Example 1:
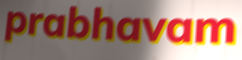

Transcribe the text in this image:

prabhavam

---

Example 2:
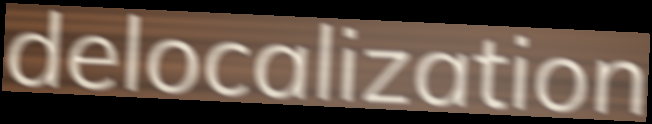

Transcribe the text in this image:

delocalization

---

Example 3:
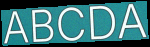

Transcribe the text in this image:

ABCDA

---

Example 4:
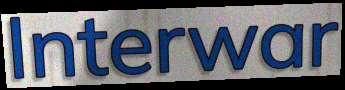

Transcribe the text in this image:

Interwar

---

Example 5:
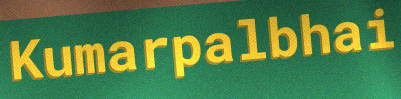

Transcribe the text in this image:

Kumarpalbhai